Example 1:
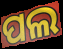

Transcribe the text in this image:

ପଲ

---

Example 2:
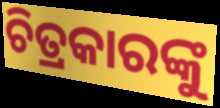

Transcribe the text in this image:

ଚିତ୍ରକାରଙ୍କୁ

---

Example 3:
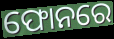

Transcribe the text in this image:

ଫୋନରେ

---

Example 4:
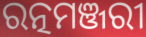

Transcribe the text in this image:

ରତ୍ନମଞ୍ଜରୀ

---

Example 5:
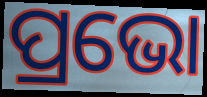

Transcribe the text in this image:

ପ୍ରଭୋ